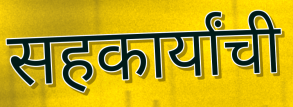
सहकार्यांची